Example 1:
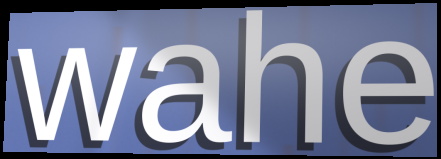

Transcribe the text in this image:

wahe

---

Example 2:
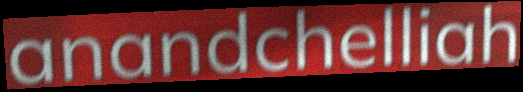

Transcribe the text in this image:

anandchelliah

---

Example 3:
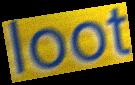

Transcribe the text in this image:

loot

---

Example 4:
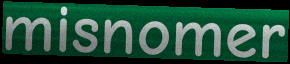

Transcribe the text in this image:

misnomer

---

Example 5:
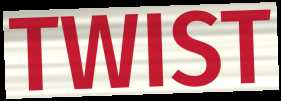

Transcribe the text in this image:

TWIST